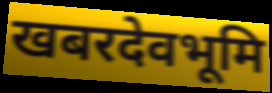
खबरदेवभूमि